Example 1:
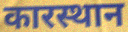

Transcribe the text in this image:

कारस्थान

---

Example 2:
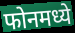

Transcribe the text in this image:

फोनमध्ये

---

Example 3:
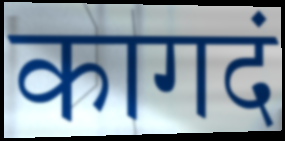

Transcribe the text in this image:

कागदं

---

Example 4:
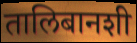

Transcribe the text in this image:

तालिबानशी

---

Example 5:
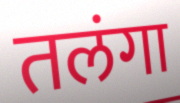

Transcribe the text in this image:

तलंगा